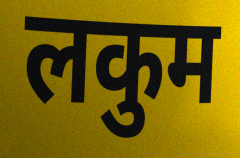
लकुम